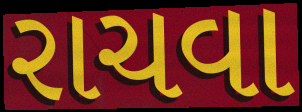
રાચવા